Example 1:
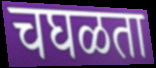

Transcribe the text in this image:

चघळता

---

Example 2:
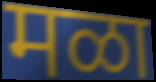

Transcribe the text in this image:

मळा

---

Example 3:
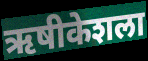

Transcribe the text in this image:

ऋषीकेशला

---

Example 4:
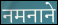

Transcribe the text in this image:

नमनाने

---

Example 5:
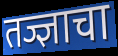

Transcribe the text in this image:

तज्ज्ञाचा